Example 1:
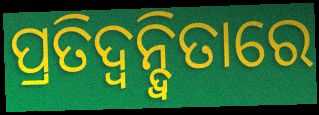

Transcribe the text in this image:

ପ୍ରତିଦ୍ୱନ୍ଦ୍ବିତାରେ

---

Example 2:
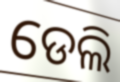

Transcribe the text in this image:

ଡେଲି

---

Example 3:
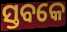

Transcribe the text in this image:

ସ୍ତବକେ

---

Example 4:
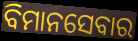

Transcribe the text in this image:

ବିମାନସେବାର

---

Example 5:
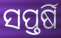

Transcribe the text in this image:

ସପ୍ତର୍ଷି